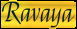
Ravaya